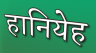
हानियेह